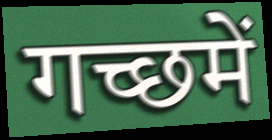
गच्छमें